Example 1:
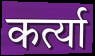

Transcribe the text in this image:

कर्त्या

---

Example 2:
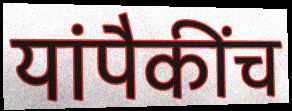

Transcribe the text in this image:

यांपैकींच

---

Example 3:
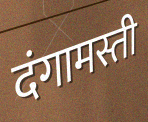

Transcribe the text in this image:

दंगामस्ती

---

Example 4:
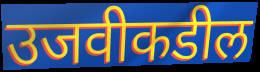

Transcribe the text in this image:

उजवीकडील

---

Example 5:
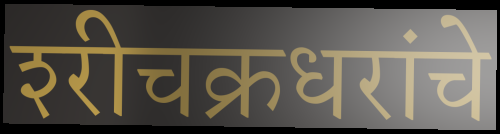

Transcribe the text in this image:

श्रीचक्रधरांचे